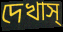
দেখাস্